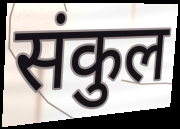
संकुल